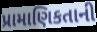
પ્રામાણિકતાની